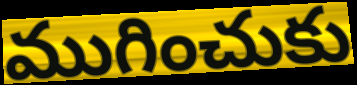
ముగించుకు